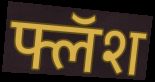
फ्लॅश